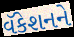
વૅકેશનને